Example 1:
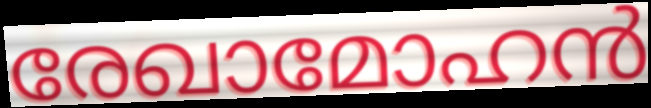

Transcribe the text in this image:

രേഖാമോഹൻ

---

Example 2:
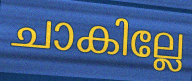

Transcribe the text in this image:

ചാകില്ലേ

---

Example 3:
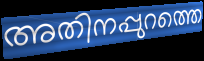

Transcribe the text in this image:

അതിനപ്പുറത്തെ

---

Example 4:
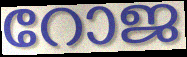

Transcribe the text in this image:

റോജ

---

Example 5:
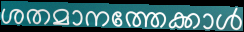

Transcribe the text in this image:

ശതമാനത്തേക്കാൾ